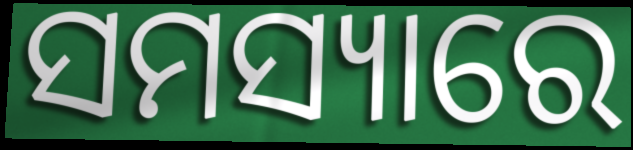
ସମସ୍ୟାରେ